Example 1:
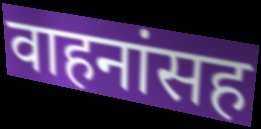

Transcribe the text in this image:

वाहनांसह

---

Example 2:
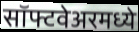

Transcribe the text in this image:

सॉफ्टवेअरमध्ये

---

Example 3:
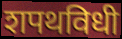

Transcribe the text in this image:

शपथविधी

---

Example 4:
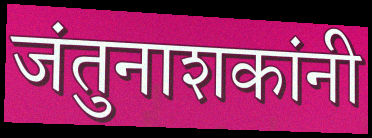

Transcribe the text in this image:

जंतुनाशकांनी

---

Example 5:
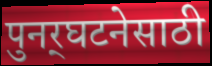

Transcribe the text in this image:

पुनर्घटनेसाठी